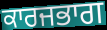
ਕਾਰਜਭਾਗ